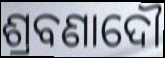
ଶ୍ରବଣାଦୌ